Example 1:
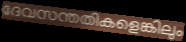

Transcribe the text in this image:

ദേവസന്തതികളെങ്കിലും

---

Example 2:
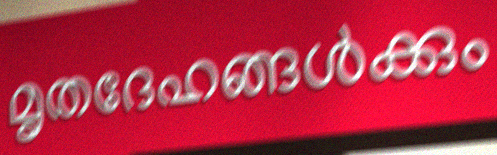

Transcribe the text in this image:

മൃതദേഹങ്ങൾക്കും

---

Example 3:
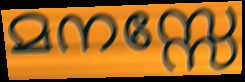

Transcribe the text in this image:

മനസ്സേ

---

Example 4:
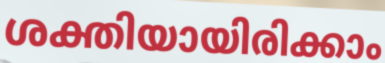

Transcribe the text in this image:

ശക്തിയായിരിക്കാം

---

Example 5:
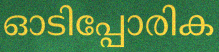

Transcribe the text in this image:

ഓടിപ്പോരിക